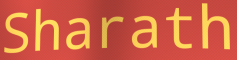
Sharath